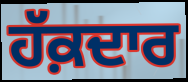
ਹੱਕ਼ਦਾਰ